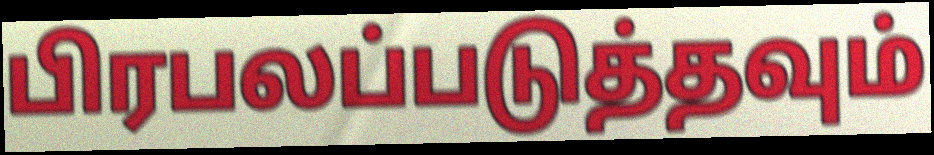
பிரபலப்படுத்தவும்